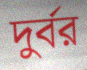
দুর্বর